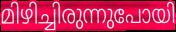
മിഴിച്ചിരുന്നുപോയി